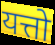
यत्तो